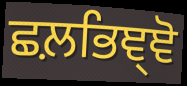
ਛਲ਼ਭਿਞ੍ਞੋ